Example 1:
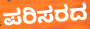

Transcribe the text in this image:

ಪರಿಸರದ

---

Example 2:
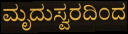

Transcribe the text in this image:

ಮೃದುಸ್ವರದಿಂದ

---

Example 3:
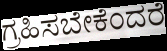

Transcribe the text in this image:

ಗ್ರಹಿಸಬೇಕೆಂದರೆ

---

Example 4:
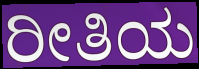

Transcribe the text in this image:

ರೀತಿಯ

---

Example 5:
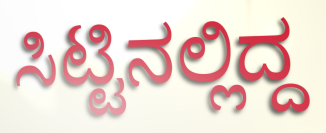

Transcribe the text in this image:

ಸಿಟ್ಟಿನಲ್ಲಿದ್ದ